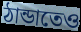
ঠান্ডাতেও